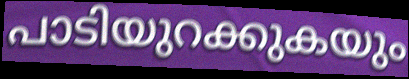
പാടിയുറക്കുകയും